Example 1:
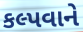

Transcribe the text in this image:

કલ્પવાને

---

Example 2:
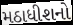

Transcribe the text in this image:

મઠાધીશનો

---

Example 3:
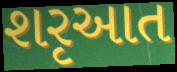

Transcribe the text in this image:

શરૃઆત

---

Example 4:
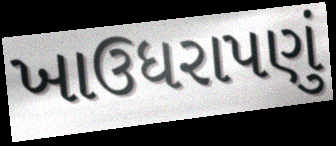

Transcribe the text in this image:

ખાઉધરાપણું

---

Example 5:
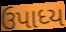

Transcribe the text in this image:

ઉપાધ્ય